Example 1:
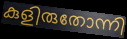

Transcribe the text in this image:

കുളിരുതോന്നി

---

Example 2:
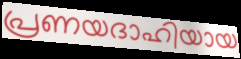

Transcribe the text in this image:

പ്രണയദാഹിയായ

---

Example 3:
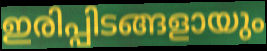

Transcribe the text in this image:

ഇരിപ്പിടങ്ങളായും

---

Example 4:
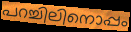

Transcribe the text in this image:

പറച്ചിലിനൊപ്പം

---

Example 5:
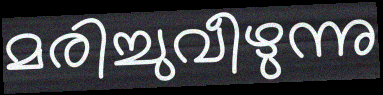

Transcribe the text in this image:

മരിച്ചുവീഴുന്നു